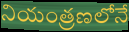
నియంత్రణలోనే